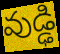
వుడ్ఢి